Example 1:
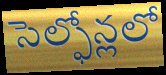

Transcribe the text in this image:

సెల్ఫోన్లలో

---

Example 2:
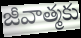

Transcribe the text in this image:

జీవాత్మకు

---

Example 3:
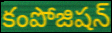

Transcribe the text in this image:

కంపోజిషన్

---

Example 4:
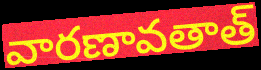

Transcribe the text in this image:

వారణావతాత్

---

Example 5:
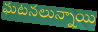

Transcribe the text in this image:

ఘటనలున్నాయి